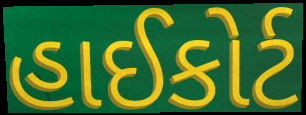
હાઈકોર્ટ